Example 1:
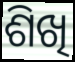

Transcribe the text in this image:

ଶିଖି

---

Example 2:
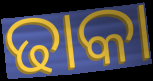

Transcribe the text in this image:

ଢାକା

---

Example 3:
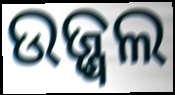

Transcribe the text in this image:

ଉଜ୍ଜ୍ୱଲ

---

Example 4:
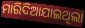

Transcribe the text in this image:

ମାରିଦିଆଯାଇଥିଲା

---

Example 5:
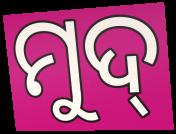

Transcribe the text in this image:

ମୁଦ୍